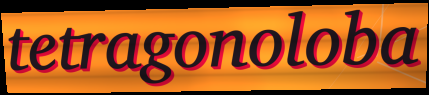
tetragonoloba